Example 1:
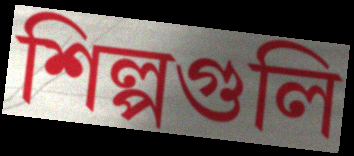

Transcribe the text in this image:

শিল্পগুলি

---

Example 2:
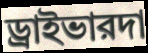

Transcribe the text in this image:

ড্রাইভারদা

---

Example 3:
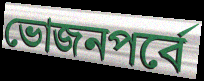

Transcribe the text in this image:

ভোজনপর্বে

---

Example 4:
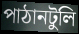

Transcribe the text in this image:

পাঠানটুলি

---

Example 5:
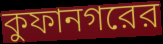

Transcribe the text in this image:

কুফানগরের